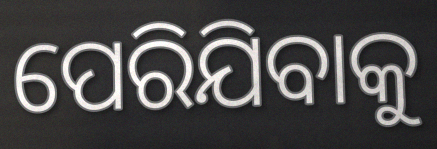
ପେରିଯିବାକୁ